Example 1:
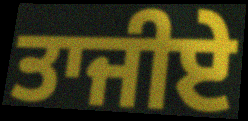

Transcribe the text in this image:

ਤਾਜੀਏ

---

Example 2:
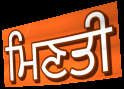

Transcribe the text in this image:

ਮਿਣਤੀ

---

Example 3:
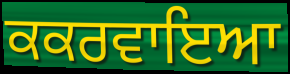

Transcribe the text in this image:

ਕਕਰਵਾਇਆ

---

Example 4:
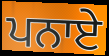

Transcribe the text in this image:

ਪਨਾਏ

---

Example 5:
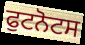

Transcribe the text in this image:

ਫੁਟਨੋਟਸ